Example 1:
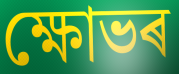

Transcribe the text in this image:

ক্ষোভৰ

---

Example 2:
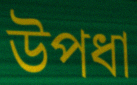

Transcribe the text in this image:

উপধা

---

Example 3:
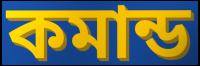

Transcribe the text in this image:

কমান্ড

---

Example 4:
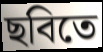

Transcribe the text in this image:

ছবিতে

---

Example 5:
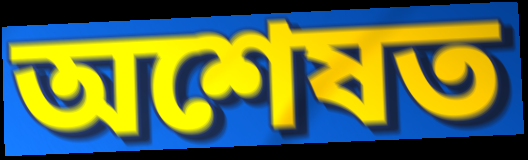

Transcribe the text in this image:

অশেষত